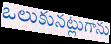
ఒలుకునట్లుగాను